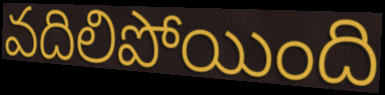
వదిలిపోయింది